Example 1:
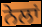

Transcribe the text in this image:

ਨੇਲਾਂ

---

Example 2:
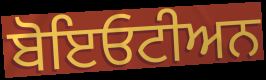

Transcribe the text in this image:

ਬੋਇਓਟੀਅਨ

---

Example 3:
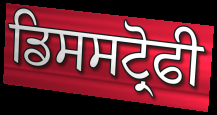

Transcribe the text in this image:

ਡਿਸਸਟ੍ਰੋਫੀ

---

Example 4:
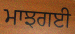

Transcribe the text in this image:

ਮਾਝਗਈ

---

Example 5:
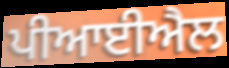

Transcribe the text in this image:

ਪੀਆਈਐਲ